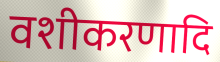
वशीकरणादि